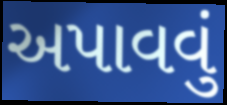
અપાવવું